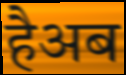
हैअब